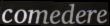
comedere